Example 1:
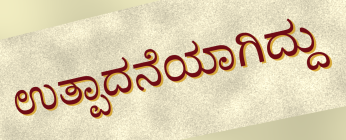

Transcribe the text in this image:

ಉತ್ಪಾದನೆಯಾಗಿದ್ದು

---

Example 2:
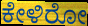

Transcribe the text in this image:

ಕೇಳಿರೋ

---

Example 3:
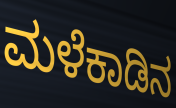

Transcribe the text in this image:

ಮಳೆಕಾಡಿನ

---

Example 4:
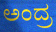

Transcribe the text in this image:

ಅಂದ್ರ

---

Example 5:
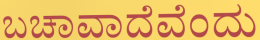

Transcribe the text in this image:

ಬಚಾವಾದೆವೆಂದು